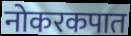
नोकरकपात